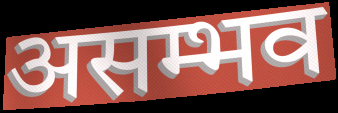
असम्‍भव